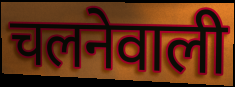
चलनेवाली